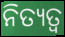
ନିତ୍ୟତ୍ୱ